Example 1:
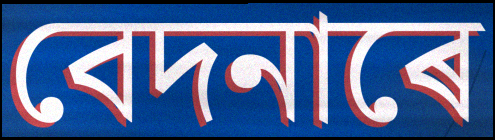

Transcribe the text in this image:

বেদনাৰে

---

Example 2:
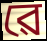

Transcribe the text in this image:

ৱে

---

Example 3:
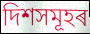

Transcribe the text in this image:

দিশসমূহৰ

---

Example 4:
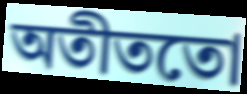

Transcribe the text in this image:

অতীততো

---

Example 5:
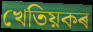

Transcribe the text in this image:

খেতিয়কৰ